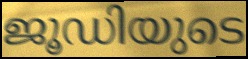
ജൂഡിയുടെ